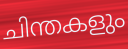
ചിന്തകളും